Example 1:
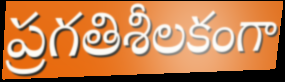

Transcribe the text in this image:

ప్రగతిశీలకంగా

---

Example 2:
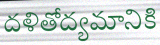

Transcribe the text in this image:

దళితోద్యమానికి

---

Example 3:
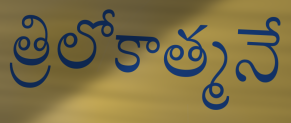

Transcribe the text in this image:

త్రిలోకాత్మనే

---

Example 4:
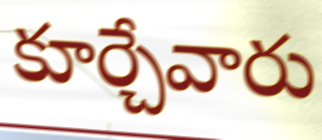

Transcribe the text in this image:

కూర్చేవారు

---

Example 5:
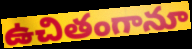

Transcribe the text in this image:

ఉచితంగానూ